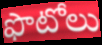
ఫొటోలు